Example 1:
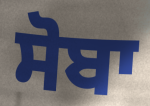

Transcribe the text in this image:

ਸੋਬਾ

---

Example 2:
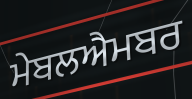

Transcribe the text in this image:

ਮੇਬਲਐਮਬਰ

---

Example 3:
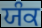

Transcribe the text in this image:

ਯੰਕ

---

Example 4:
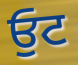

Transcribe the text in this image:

ਓੁਟ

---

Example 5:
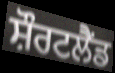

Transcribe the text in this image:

ਸ਼ੌਰਟਲੈਂਡ